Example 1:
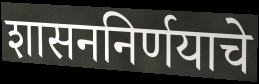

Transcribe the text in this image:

शासननिर्णयाचे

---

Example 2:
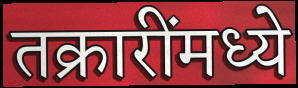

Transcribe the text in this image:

तक्रारींमध्ये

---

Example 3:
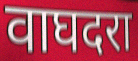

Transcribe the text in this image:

वाघदरा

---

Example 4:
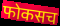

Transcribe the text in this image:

फोकसच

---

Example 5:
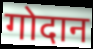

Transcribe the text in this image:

गोदान